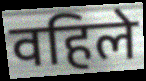
वहिले